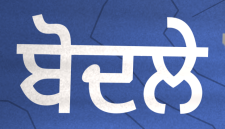
ਬੋਦਲੇ